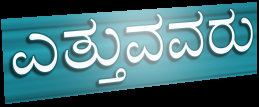
ಎತ್ತುವವರು